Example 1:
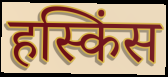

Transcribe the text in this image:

हस्किंस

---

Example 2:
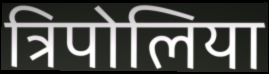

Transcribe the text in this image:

त्रिपोलिया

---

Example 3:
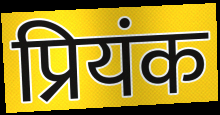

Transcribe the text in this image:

प्रियंक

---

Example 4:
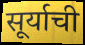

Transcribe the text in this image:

सूर्याची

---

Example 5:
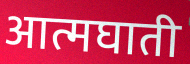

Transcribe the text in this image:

आत्मघाती